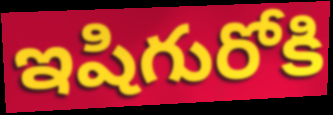
ఇషిగురోకి